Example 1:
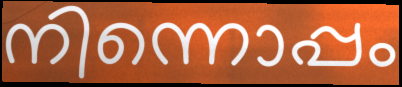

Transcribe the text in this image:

നിന്നൊപ്പം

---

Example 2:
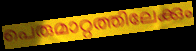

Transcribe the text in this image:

പെരുമാറ്റത്തിലേക്കും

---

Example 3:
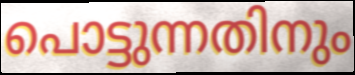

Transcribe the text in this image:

പൊട്ടുന്നതിനും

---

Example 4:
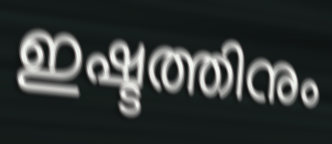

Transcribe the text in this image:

ഇഷ്ടത്തിനും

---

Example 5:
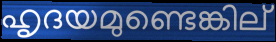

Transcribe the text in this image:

ഹൃദയമുണ്ടെങ്കില്